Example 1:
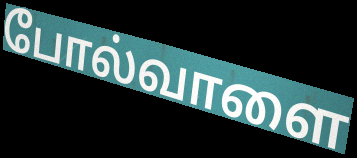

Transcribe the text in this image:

போல்வாளை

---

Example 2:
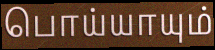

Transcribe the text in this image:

பொய்யாயும்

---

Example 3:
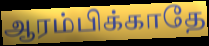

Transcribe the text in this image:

ஆரம்பிக்காதே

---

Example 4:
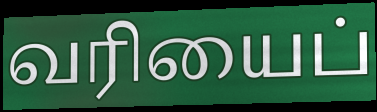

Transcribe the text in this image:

வரியைப்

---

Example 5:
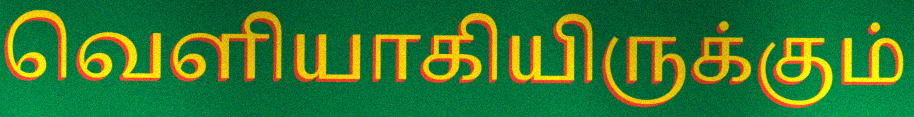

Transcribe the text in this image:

வெளியாகியிருக்கும்